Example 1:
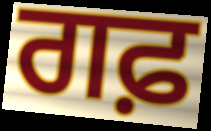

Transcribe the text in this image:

ਗਫ਼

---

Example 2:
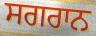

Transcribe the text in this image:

ਸਗਰਾਨ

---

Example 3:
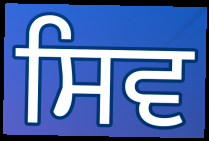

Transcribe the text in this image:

ਸਿਵ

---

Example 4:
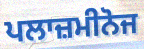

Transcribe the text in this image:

ਪਲਾਜ਼ਮੀਨੋਜ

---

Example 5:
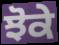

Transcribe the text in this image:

ਝੋਕੇ